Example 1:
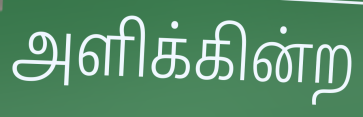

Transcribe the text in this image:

அளிக்கின்ற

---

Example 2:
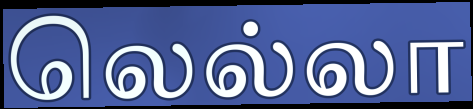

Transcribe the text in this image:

லெல்லா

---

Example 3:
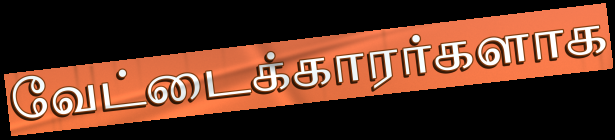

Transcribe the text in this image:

வேட்டைக்காரர்களாக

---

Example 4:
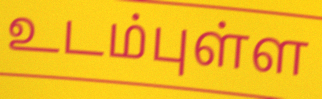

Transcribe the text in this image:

உடம்புள்ள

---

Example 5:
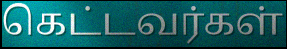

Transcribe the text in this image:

கெட்டவர்கள்